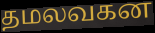
தமலவகன